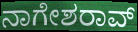
ನಾಗೇಶರಾವ್